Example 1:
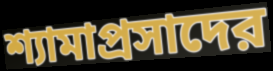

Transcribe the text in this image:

শ্যামাপ্রসাদের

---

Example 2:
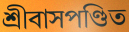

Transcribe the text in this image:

শ্রীবাসপণ্ডিত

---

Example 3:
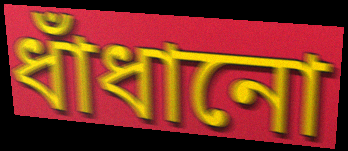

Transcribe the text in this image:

ধাঁধানো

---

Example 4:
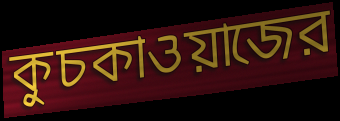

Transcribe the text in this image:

কুচকাওয়াজের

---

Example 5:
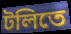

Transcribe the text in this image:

টলিতে